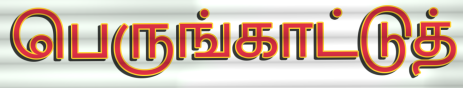
பெருங்காட்டுத்